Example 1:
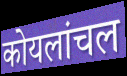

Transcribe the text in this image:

कोयलांचल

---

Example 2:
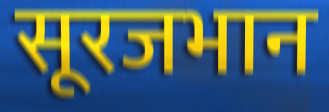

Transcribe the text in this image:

सूरजभान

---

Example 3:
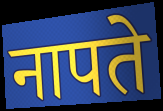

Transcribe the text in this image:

नापते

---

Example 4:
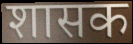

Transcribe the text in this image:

शासक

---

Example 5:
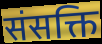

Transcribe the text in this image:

संसक्ति